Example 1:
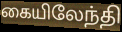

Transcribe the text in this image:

கையிலேந்தி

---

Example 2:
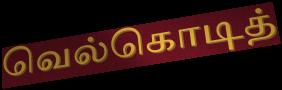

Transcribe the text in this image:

வெல்கொடித்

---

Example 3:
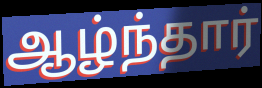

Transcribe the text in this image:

ஆழ்ந்தார்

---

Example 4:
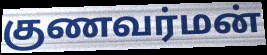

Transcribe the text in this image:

குணவர்மன்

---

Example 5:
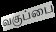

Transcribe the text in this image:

வகுப்பை